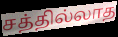
சத்தில்லாத